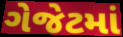
ગેજેટમાં